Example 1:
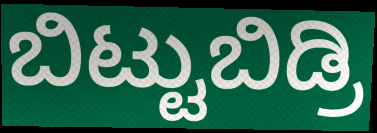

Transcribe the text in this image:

ಬಿಟ್ಟುಬಿಡ್ರಿ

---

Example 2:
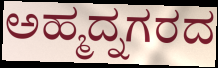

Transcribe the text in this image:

ಅಹ್ಮದ್ನಗರದ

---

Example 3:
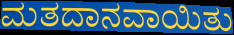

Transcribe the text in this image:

ಮತದಾನವಾಯಿತು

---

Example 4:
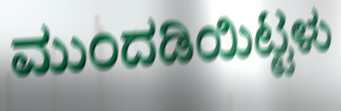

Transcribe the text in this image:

ಮುಂದಡಿಯಿಟ್ಟಳು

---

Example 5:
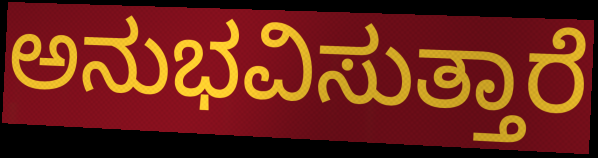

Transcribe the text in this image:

ಅನುಭವಿಸುತ್ತಾರೆ